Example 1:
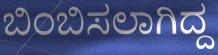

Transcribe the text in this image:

ಬಿಂಬಿಸಲಾಗಿದ್ದ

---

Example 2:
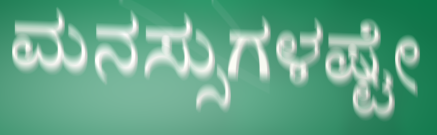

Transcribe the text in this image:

ಮನಸ್ಸುಗಳಷ್ಟೇ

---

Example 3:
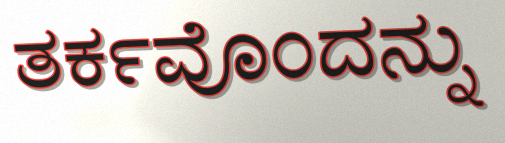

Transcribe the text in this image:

ತರ್ಕವೊಂದನ್ನು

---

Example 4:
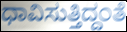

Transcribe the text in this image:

ಧಾವಿಸುತ್ತಿದ್ದಂತೆ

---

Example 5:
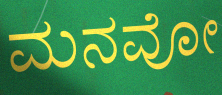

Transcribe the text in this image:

ಮನವೋ